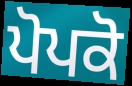
ਪੋਪਕੋ